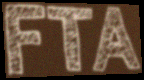
FTA